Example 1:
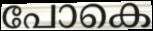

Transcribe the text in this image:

പോകെ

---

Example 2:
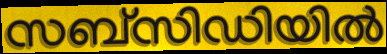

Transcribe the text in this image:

സബ്സിഡിയിൽ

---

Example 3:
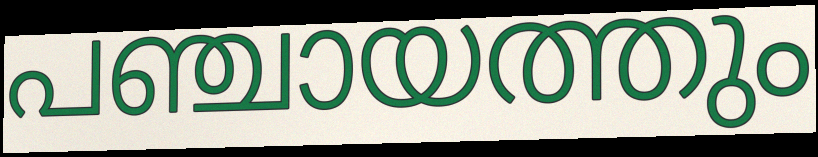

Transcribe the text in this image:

പഞ്ചായത്തും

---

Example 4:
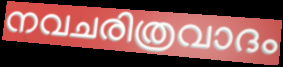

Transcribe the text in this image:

നവചരിത്രവാദം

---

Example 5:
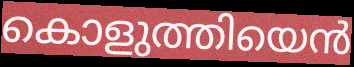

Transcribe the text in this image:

കൊളുത്തിയെൻ